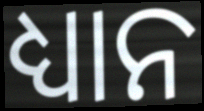
ଧ୍ୟାନ